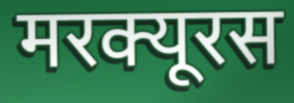
मरक्यूरस